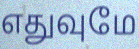
எதுவுமே